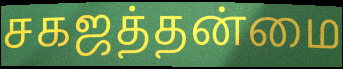
சகஜத்தன்மை